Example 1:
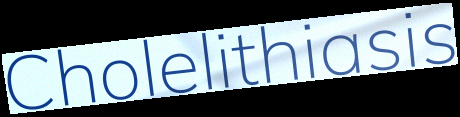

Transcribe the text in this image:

Cholelithiasis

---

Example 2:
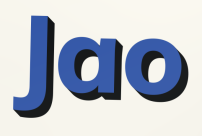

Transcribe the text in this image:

Jao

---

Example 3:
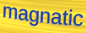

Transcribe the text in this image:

magnatic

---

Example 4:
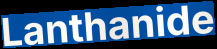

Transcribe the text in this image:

Lanthanide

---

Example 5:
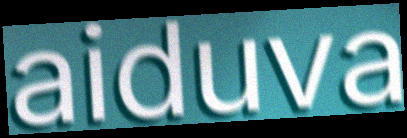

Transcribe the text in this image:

aiduva